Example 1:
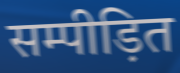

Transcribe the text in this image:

सम्पीड़ित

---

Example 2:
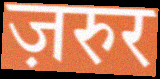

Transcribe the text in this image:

ज़रुर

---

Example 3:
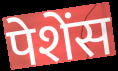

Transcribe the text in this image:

पेशेंस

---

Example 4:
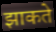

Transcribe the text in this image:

झाकते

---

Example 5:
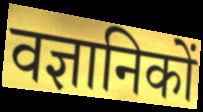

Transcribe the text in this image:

वज्ञानिकों